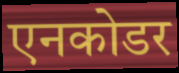
एनकोडर